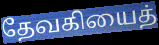
தேவகியைத்